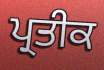
ਪ੍ਰਤੀਕ